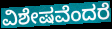
ವಿಶೇಷವೆಂದರೆ